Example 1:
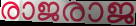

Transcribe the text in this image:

രാജരാജ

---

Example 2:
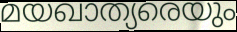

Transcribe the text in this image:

മയഖാത്യരെയും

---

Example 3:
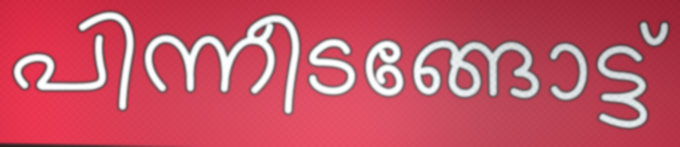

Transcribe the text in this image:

പിന്നീടങ്ങോട്ട്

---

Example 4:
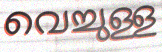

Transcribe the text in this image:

വെച്ചുള്ള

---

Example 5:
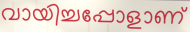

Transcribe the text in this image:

വായിച്ചപ്പോളാണ്